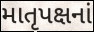
માતૃપક્ષનાં